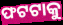
ଫଟଟାକୁ